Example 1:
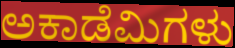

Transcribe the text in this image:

ಅಕಾಡೆಮಿಗಳು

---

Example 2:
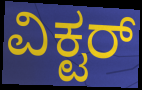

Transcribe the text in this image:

ವಿಕ್ಟರ್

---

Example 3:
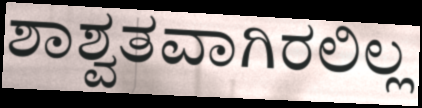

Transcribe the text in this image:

ಶಾಶ್ವತವಾಗಿರಲಿಲ್ಲ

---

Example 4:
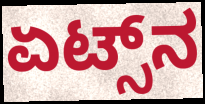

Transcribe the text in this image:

ಏಟ್ಸ್‌ನ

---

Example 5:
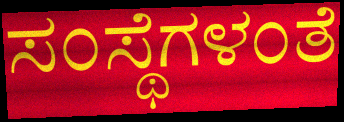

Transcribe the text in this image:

ಸಂಸ್ಥೆಗಳಂತೆ